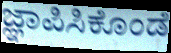
ಜ್ಞಾಪಿಸಿಕೊಂಡೆ